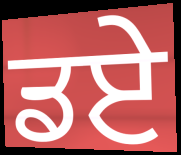
ਡਏ